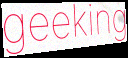
geeking